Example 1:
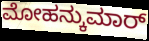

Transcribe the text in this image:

ಮೋಹನ್ಕುಮಾರ್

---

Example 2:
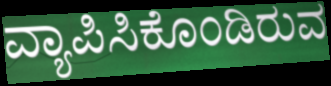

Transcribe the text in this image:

ವ್ಯಾಪಿಸಿಕೊಂಡಿರುವ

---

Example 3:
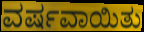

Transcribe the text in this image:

ವರ್ಷವಾಯಿತು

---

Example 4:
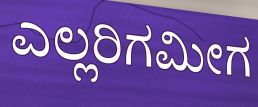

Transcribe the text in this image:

ಎಲ್ಲರಿಗಮೀಗ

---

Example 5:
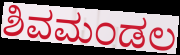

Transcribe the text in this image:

ಶಿವಮಂಡಲ